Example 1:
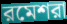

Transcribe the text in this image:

রমেশরা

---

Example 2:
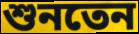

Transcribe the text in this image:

শুনতেন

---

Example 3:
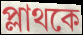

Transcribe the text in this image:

প্লাথকে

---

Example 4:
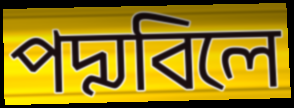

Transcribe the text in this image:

পদ্মবিলে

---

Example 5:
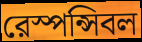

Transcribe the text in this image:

রেস্পন্সিবল